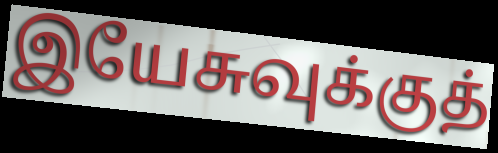
இயேசுவுக்குத்